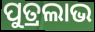
ପୁତ୍ରଲାଭ